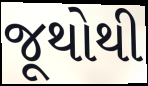
જૂથોથી